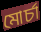
মোর্চা